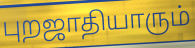
புறஜாதியாரும்